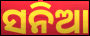
ସନିଆ